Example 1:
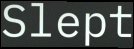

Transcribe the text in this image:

Slept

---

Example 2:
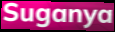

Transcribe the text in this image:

Suganya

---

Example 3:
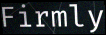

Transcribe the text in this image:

Firmly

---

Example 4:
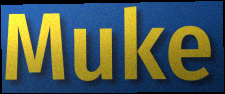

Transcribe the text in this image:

Muke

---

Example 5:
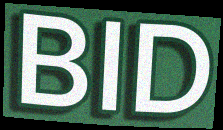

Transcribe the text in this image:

BID